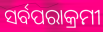
ସର୍ବପରାକ୍ରମୀ